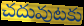
చదువుటకు